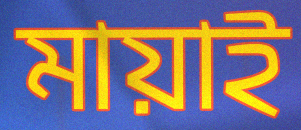
মায়াই